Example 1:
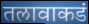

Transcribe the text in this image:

तलावाकडं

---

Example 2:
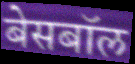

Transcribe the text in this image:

बेसबॉल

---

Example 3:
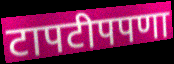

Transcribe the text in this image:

टापटीपपणा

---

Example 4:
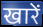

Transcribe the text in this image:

खारें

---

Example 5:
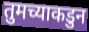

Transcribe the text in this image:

तुमच्याकडुन